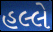
હલ્લે